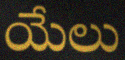
యేలు